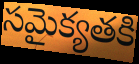
సమైక్యతకి